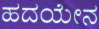
ಹದಯೇನ